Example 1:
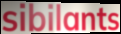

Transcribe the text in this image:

sibilants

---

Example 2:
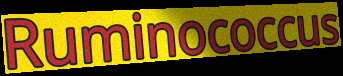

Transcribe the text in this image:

Ruminococcus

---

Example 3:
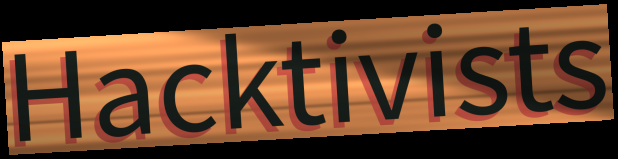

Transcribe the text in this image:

Hacktivists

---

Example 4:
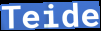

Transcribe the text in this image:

Teide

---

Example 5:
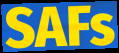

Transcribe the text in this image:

SAFs